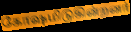
கோஷமிடுகின்றனர்